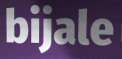
bijale